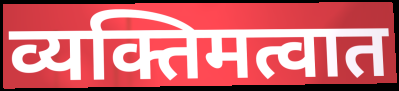
व्यक्तिमत्वात